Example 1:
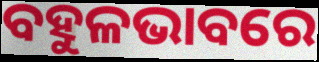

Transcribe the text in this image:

ବହୁଳଭାବରେ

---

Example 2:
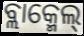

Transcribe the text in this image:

ବ୍ଲାକ୍ମେଲ୍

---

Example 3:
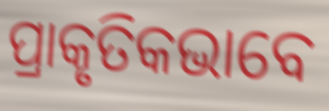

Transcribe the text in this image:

ପ୍ରାକୃତିକଭାବେ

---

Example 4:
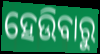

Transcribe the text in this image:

ହେଉିବାରୁ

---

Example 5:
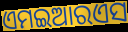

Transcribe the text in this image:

ଏମଇଆରଏସ